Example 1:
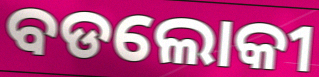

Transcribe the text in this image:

ବଡଲୋକୀ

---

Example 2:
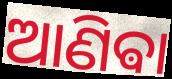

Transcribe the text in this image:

ଆଣିଵା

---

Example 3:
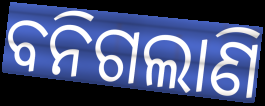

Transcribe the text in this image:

ବନିଗଲାଣି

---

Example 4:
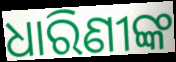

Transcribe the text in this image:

ଧାରିଣୀଙ୍କ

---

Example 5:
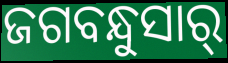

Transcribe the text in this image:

ଜଗବନ୍ଧୁସାର୍